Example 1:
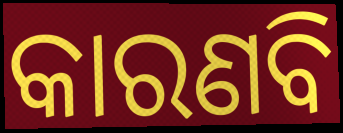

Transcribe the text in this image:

କାରଣବି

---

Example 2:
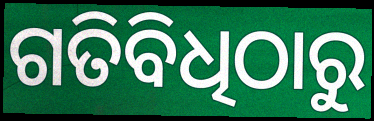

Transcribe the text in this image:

ଗତିବିଧିଠାରୁ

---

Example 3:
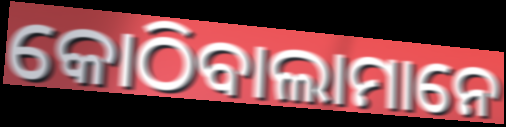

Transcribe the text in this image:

କୋଠିବାଲାମାନେ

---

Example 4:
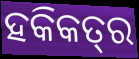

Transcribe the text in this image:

ହକିକତ୍‌ର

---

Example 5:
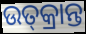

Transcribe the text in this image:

ଉତ୍‌କ୍ରାନ୍ତ